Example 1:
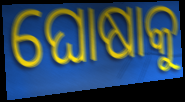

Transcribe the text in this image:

ଘୋଷାକୁ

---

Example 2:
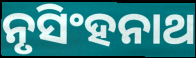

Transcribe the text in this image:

ନୃସିଂହନାଥ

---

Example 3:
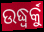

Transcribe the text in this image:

ଉଦ୍ଧ୍ୱର୍କୁ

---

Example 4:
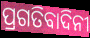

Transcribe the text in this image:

ପ୍ରଗତିବାଦିନୀ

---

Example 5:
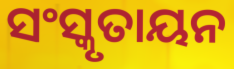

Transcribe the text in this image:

ସଂସ୍କୃତାୟନ